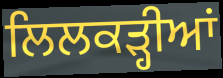
ਲਿਲਕੜ੍ਹੀਆਂ